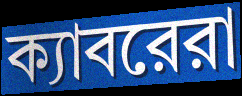
ক্যাবরেরা